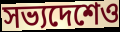
সভ্যদেশেও